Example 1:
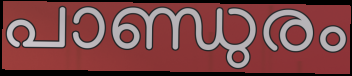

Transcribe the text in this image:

പാണ്ഡുരം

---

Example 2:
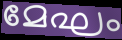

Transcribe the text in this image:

മേഘം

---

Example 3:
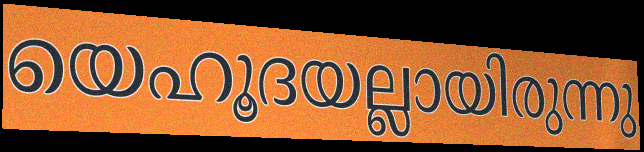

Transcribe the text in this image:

യെഹൂദയല്ലായിരുന്നു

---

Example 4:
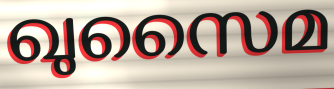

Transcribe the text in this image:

ഖുസൈമ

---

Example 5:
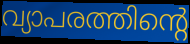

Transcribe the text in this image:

വ്യാപരത്തിന്റെ